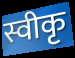
स्वीकृ